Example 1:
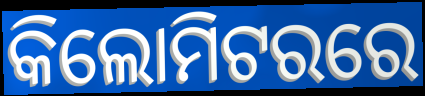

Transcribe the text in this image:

କିଲୋମିଟରରେ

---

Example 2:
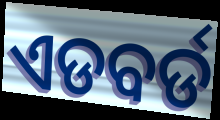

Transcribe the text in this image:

ଏଡବର୍ଡ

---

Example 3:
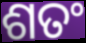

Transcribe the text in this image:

ଶତଂ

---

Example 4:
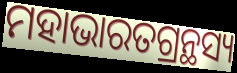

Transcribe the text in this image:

ମହାଭାରତଗ୍ରନ୍ଥସ୍ୟ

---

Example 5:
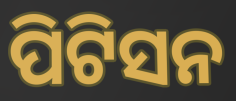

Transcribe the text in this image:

ପିଟିସନ